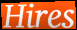
Hires